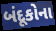
બંદૂકોના